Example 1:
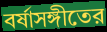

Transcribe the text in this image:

বর্ষাসঙ্গীতের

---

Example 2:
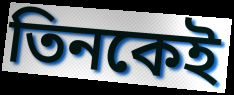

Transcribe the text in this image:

তিনকেই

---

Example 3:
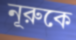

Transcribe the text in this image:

নূরুকে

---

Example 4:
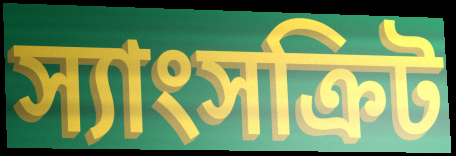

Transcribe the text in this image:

স্যাংসক্রিট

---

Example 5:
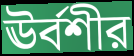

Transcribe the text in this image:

ঊর্বশীর